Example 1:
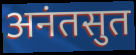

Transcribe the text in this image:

अनंतसुत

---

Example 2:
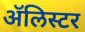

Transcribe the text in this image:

ॲलिस्टर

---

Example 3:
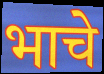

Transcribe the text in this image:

भाचे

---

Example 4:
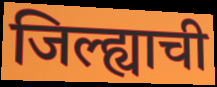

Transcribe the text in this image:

जिल्ह्याची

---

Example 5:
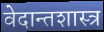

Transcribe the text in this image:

वेदान्तशास्त्र